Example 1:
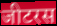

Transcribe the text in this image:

जीटरस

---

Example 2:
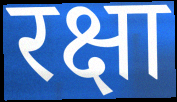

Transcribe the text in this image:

रक्षा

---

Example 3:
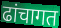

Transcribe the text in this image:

ढांचागत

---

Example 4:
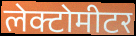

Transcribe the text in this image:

लेक्टोमीटर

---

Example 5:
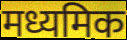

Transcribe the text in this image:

मध्यमिक